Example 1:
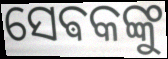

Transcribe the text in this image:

ସେଵକଙ୍କୁ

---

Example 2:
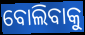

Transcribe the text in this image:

ବୋଲିବାକୁ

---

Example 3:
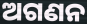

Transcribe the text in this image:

ଅଗଣନ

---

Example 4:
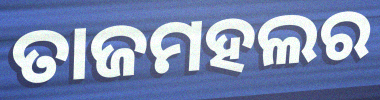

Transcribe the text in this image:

ତାଜମହଲର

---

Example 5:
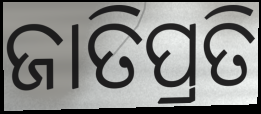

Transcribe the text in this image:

ଜାତିପ୍ରତି